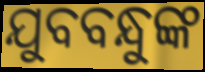
ଯୁବବନ୍ଧୁଙ୍କ